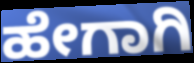
ಹೇಗಾಗಿ